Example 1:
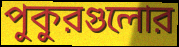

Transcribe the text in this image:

পুকুরগুলোর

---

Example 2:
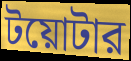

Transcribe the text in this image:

টয়োটার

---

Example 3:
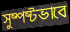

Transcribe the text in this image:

সুষ্পষ্টভাবে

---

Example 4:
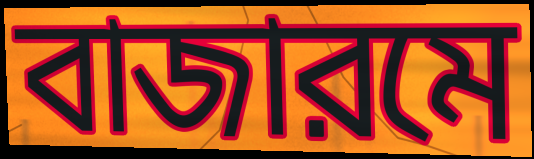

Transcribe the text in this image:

বাজারমে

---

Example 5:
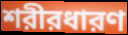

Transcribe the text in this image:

শরীরধারণ